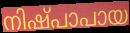
നിഷ്പാപായ